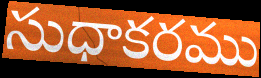
సుధాకరము